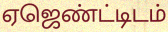
ஏஜெண்ட்டிடம்